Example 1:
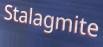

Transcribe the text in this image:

Stalagmite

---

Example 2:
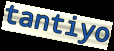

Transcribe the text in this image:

tantiyo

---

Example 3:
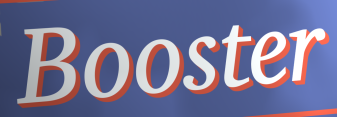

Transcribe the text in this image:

Booster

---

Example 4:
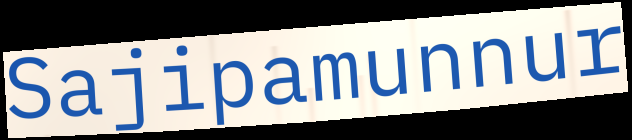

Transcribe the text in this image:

Sajipamunnur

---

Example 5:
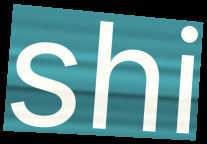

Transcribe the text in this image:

shi